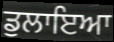
ਡੁਲਾਇਆ